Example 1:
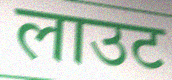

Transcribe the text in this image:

लाउट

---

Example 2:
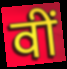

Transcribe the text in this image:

वीं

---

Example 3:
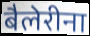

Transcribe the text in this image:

बैलेरीना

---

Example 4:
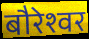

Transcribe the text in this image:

बौरेश्वर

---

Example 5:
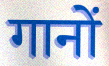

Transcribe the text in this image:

गानों